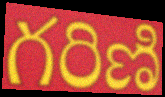
గరిణి